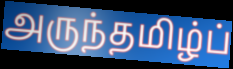
அருந்தமிழ்ப்